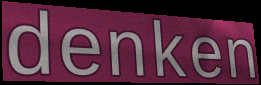
denken